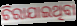
ଚିରାଯାଇଥିବା